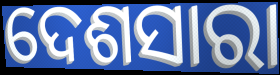
ଦେଶସାରା